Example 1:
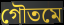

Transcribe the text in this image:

গৌতমে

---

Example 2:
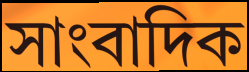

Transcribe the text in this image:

সাংবাদিক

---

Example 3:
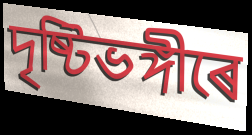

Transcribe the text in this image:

দৃষ্টিভঙ্গীৰে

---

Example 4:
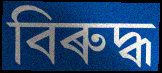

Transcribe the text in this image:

বিৰুদ্ধ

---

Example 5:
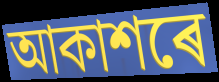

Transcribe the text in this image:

আকাশৰে